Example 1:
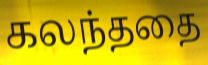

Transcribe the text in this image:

கலந்ததை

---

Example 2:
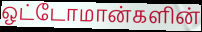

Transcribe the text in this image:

ஒட்டோமான்களின்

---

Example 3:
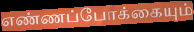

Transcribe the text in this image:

எண்ணப்போக்கையும்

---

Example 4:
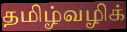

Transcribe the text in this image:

தமிழ்வழிக்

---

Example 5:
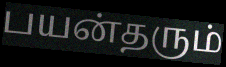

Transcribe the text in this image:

பயன்தரும்